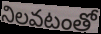
నిలవటంతో